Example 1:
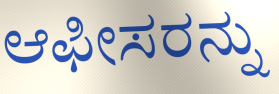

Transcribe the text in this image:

ಆಫೀಸರನ್ನು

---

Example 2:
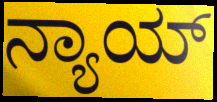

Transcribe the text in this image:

ನ್ಯಾಯ್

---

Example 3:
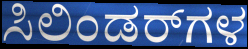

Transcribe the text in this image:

ಸಿಲಿಂಡರ್‌ಗಳ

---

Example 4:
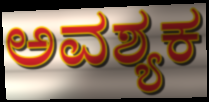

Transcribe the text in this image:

ಅವಶ್ಯಕ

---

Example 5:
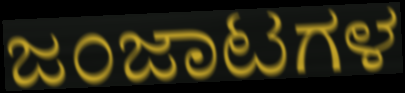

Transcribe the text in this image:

ಜಂಜಾಟಗಳ